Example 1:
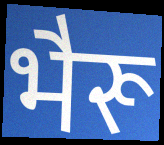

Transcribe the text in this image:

भैरू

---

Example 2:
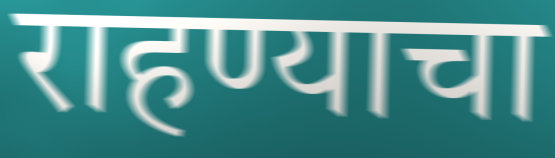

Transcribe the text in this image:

राहण्याचा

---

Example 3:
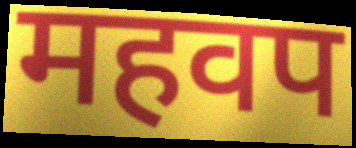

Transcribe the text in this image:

महवप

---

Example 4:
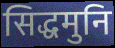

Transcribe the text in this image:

सिद्धमुनि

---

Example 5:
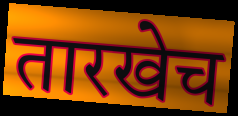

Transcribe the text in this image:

तारखेच